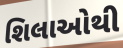
શિલાઓથી